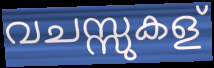
വചസ്സുകള്